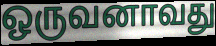
ஒருவனாவது